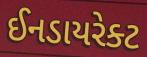
ઈનડાયરેક્ટ